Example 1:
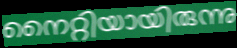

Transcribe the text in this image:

നൈറ്റിയായിരുന്നു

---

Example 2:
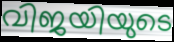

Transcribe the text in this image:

വിജയിയുടെ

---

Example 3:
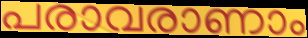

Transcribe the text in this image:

പരാവരാണാം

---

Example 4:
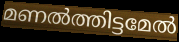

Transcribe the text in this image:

മണൽത്തിട്ടമേൽ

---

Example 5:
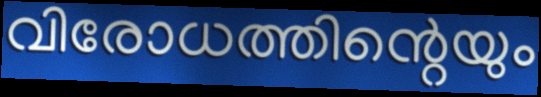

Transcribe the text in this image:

വിരോധത്തിന്റെയും